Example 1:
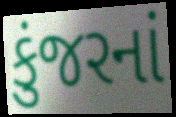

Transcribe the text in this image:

કુંજરનાં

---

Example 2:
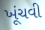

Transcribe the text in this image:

ખૂંચવી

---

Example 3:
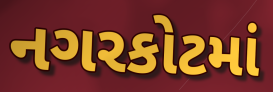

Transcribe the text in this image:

નગરકોટમાં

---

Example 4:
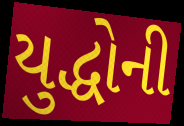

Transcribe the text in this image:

યુદ્ધોની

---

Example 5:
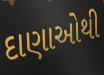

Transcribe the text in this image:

દાણાઓથી